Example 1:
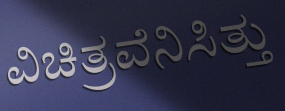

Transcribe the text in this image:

ವಿಚಿತ್ರವೆನಿಸಿತ್ತು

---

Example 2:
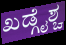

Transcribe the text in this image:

ಖಡ್ಗೈಶ್ಚ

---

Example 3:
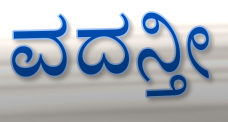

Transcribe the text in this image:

ವದನ್ತೀ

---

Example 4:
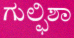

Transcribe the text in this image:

ಗುಲ್ಫಿಶಾ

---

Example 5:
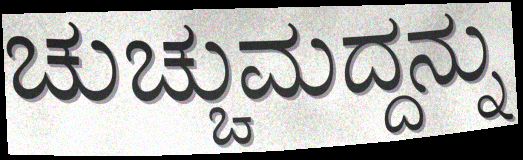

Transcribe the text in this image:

ಚುಚ್ಚುಮದ್ದನ್ನು